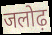
जलोढ़